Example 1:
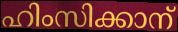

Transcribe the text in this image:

ഹിംസിക്കാന്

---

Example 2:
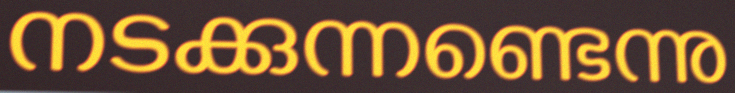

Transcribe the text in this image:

നടക്കുന്നണ്ടെന്നു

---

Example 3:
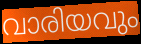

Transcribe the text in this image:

വാരിയവും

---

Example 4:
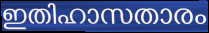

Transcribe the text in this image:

ഇതിഹാസതാരം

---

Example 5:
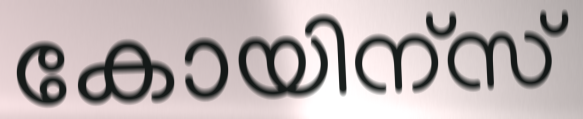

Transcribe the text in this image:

കോയിന്സ്